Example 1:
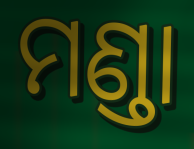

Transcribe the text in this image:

ମଣ୍ଡା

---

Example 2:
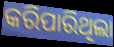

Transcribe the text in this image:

କରିପାରିଥିଲା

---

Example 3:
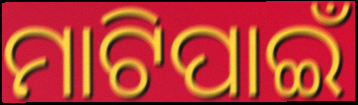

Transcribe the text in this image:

ମାଟିପାଇଁ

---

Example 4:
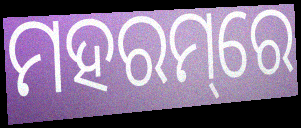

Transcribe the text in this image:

ମହରମ୍‌ରେ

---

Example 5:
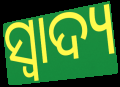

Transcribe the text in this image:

ସ୍ଵାଦ୍ୟ